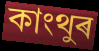
কাংথুৰ